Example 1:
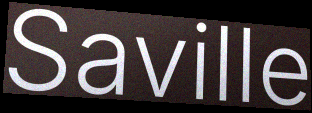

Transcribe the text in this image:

Saville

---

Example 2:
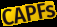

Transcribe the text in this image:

CAPFs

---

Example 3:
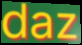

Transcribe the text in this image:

daz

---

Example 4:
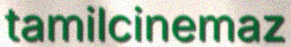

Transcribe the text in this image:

tamilcinemaz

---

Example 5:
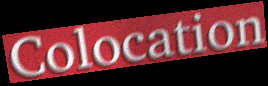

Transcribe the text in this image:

Colocation